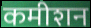
कमीशन